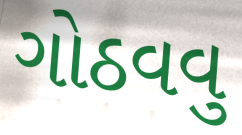
ગોઠવવુ